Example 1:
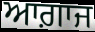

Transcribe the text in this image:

ਆਗ਼ਾਜ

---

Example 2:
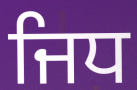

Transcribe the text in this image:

ਜਿਧ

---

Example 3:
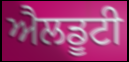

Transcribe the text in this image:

ਐਲਡੂਟੀ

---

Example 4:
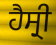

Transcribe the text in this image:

ਹੈਸ੍ਰੀ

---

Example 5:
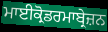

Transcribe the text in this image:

ਮਾਈਕ੍ਰੋਡਰਮਾਬ੍ਰੇਜ਼ਨ